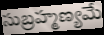
సుబ్రహ్మణ్యమే